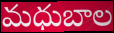
మధుబాల